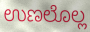
ಉಣಲೊಲ್ಲ